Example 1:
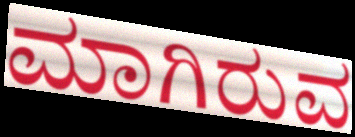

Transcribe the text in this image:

ಮಾಗಿರುವ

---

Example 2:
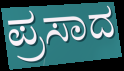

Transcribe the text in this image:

ಪ್ರಸಾದ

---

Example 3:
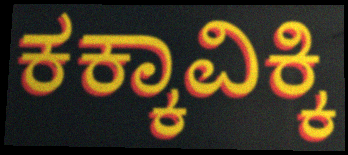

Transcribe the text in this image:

ಕಕ್ಕಾವಿಕ್ಕಿ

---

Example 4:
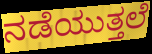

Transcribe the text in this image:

ನಡೆಯುತ್ತಲೆ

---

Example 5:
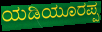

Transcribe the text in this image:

ಯಡಿಯೂರಪ್ಪ